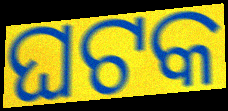
ଘଟକ